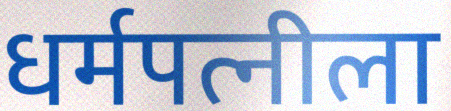
धर्मपत्नीला